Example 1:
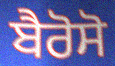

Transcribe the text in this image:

ਬੈਰੋਸੋ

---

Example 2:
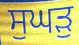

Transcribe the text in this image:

ਸੁਘੜੁ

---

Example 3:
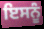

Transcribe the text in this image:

ਇਸਨੂੰ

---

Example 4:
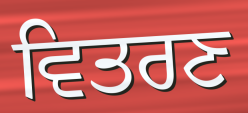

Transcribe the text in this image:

ਵਿਤਰਣ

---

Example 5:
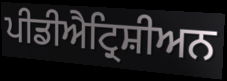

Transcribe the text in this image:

ਪੀਡੀਐਟ੍ਰਿਸ਼ੀਅਨ